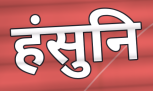
हंसुनि